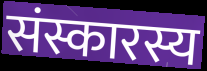
संस्कारस्य